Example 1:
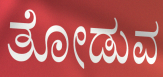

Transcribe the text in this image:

ತೋಡುವ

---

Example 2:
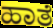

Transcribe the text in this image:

ಹಾತೆ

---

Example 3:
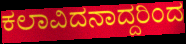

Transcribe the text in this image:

ಕಲಾವಿದನಾದ್ದರಿಂದ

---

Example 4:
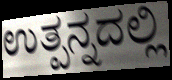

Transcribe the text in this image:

ಉತ್ಪನ್ನದಲ್ಲಿ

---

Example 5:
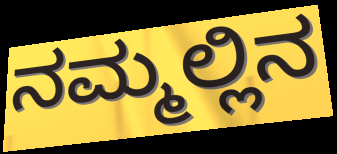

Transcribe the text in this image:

ನಮ್ಮಲ್ಲಿನ